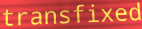
transfixed